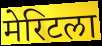
मेरिटला